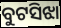
ବୁଟସିଝା